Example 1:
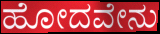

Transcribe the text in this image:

ಹೋದವೇನು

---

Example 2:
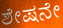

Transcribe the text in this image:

ಶೇಷನೇ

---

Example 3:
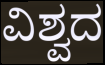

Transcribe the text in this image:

ವಿಶ್ವದ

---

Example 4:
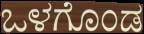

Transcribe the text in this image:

ಒಳಗೊಂಡ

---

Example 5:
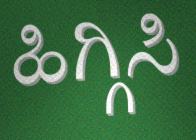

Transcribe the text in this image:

ಹಿಗ್ಗಿಸಿ